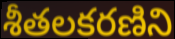
శీతలకరణిని